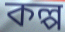
কল্প